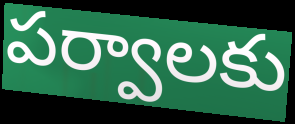
పర్వాలకు